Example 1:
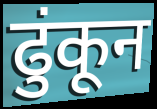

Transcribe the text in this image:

ढुंकून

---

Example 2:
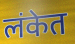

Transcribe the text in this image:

लंकेत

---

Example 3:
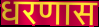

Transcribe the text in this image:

धरणास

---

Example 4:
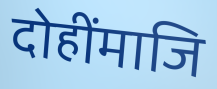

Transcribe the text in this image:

दोहींमाजि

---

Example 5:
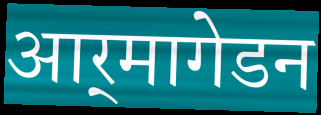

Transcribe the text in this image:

आर्मागेडन